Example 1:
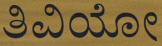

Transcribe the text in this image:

ತಿವಿಯೋ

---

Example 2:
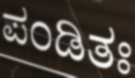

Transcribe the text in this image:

ಪಂಡಿತಃ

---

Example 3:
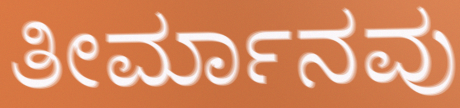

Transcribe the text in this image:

ತೀರ್ಮಾನವು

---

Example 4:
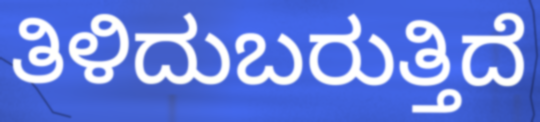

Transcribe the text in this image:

ತಿಳಿದುಬರುತ್ತಿದೆ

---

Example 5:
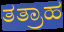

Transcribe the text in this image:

ತತ್ರಾಹ